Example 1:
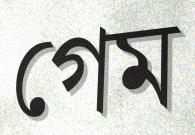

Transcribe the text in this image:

গেম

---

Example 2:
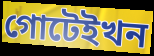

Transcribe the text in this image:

গোটেইখন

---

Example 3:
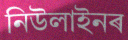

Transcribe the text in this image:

নিউলাইনৰ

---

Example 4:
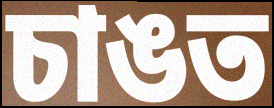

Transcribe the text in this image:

চাঙত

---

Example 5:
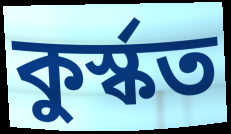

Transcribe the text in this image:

কুৰ্স্কত